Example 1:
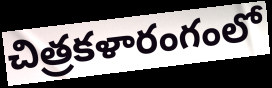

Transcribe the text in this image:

చిత్రకళారంగంలో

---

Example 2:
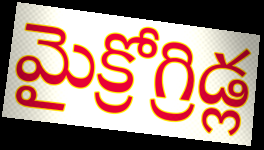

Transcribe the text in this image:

మైక్రోగ్రిడ్ల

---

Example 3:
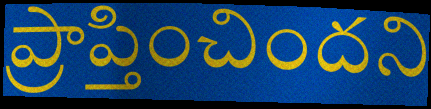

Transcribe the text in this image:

ప్రాప్తించిందని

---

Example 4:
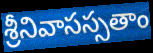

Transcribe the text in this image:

శ్రీనివాసస్సతాం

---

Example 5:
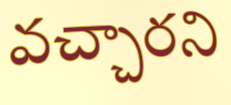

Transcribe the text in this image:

వచ్చారని